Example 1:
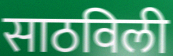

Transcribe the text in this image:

साठविली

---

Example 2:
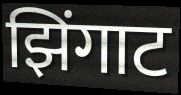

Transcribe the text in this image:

झिंगाट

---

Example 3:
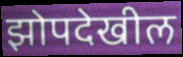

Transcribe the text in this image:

झोपदेखील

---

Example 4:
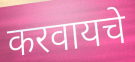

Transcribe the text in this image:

करवायचे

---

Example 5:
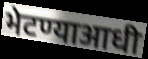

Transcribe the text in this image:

भेटण्याआधी